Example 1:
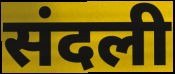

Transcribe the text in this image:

संदली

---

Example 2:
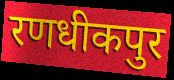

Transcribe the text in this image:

रणधीकपुर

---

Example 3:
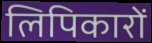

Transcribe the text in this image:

लिपिकारों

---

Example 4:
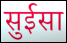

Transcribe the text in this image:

सुईसा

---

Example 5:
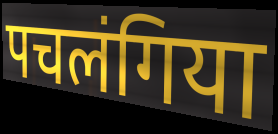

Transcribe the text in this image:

पचलंगिया